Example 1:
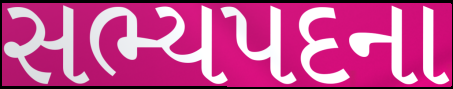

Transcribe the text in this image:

સભ્યપદના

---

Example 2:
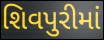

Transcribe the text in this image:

શિવપુરીમાં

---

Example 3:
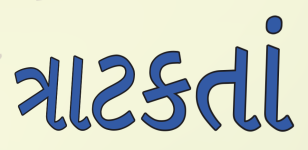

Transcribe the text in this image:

ત્રાટકતાં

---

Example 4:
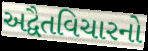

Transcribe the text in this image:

અદ્વૈતવિચારનો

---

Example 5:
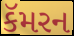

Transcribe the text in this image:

કૅમરન